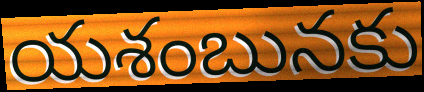
యశంబునకు